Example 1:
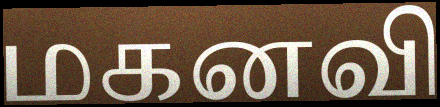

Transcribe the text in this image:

மகனவி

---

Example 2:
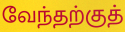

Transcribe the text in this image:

வேந்தற்குத்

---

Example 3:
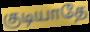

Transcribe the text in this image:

குடியாதே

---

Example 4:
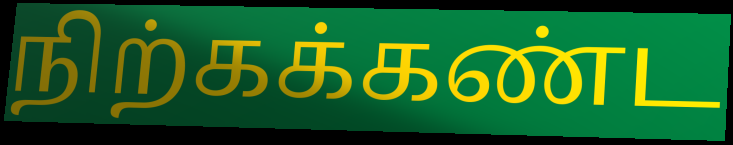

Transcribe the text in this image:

நிற்கக்கண்ட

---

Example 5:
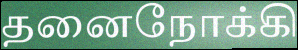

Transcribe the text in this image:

தனைநோக்கி